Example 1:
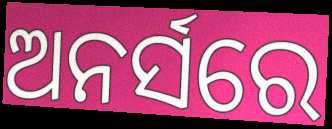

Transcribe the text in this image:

ଅନର୍ସରେ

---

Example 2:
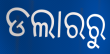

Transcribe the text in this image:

ଡଲାରରୁ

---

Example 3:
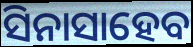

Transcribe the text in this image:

ସିନାସାହେବ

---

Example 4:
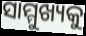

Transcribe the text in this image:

ସାମ୍ମୁଖ୍ୟକୁ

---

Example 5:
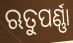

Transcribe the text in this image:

ଋତୁପର୍ଣ୍ଣା